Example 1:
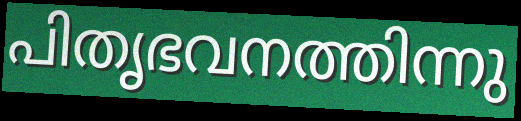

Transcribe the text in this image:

പിതൃഭവനത്തിന്നു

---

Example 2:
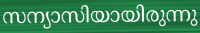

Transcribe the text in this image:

സന്യാസിയായിരുന്നു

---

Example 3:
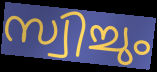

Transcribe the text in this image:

സ്വിച്ചും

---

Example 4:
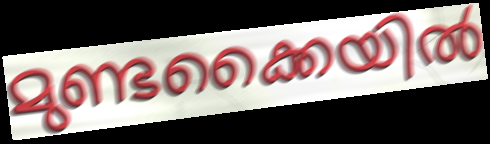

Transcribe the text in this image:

മുണ്ടക്കൈയിൽ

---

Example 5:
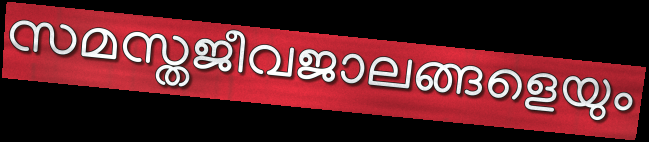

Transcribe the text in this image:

സമസ്തജീവജാലങ്ങളെയും